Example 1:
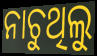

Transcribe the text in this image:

ନାଚୁଥିଲୁ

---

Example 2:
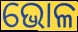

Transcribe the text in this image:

ଭୋଳ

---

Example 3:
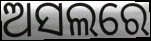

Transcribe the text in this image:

ଅସଲରେ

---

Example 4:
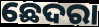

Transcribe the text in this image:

ଛେଦରା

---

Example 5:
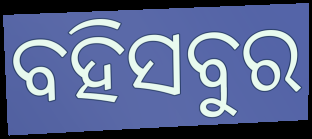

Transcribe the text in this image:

ବହିସବୁର